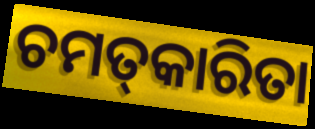
ଚମତ୍‌କାରିତା